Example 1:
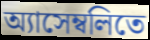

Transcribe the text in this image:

অ্যাসেম্বলিতে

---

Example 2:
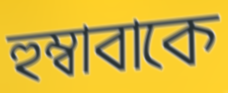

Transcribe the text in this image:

হুম্বাবাকে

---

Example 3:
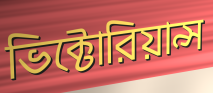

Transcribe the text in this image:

ভিক্টোরিয়ান্স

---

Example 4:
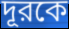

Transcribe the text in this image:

দূরকে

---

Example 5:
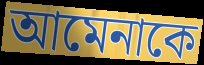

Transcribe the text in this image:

আমেনাকে